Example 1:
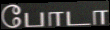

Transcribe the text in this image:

போடா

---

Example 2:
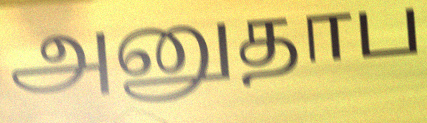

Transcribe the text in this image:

அனுதாப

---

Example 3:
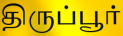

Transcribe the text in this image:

திருப்பூர்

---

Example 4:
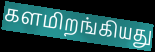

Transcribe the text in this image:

களமிறங்கியது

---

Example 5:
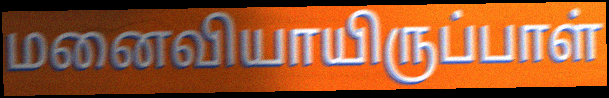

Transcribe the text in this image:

மனைவியாயிருப்பாள்